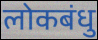
लोकबंधु